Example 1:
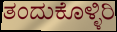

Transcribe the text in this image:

ತಂದುಕೊಳ್ಳಿರಿ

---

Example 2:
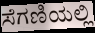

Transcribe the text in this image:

ಸೆಗಣಿಯಲ್ಲಿ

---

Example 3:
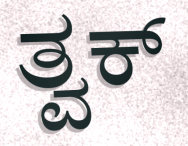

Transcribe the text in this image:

ತ್ವಕ್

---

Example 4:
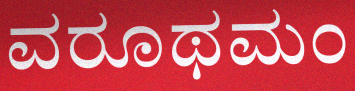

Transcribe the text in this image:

ವರೂಥಮಂ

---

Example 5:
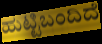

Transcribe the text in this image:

ಹುಟ್ಟಿಬಂದಿದೆ